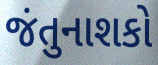
જંતુનાશકો